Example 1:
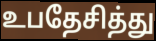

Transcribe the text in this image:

உபதேசித்து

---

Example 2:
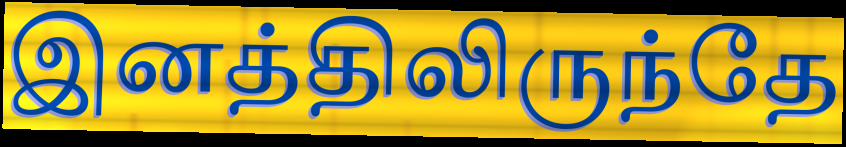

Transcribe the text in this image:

இனத்திலிருந்தே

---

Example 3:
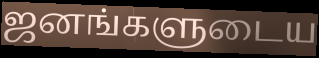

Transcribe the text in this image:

ஜனங்களுடைய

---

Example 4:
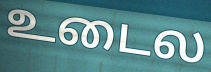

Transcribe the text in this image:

உடைல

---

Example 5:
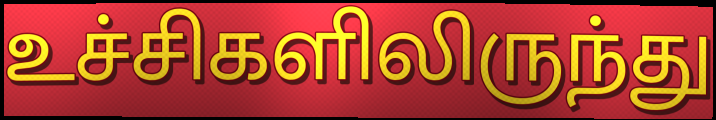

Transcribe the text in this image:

உச்சிகளிலிருந்து